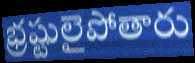
భ్రష్టులైపోతారు